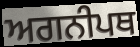
ਅਗਨੀਪਥ